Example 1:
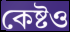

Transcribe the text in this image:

কেষ্টও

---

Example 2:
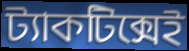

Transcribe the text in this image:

ট্যাকটিক্সেই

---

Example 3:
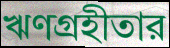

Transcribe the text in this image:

ঋণগ্রহীতার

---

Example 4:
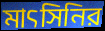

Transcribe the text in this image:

মাৎসিনির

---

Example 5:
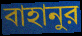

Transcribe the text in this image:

বাহানুর